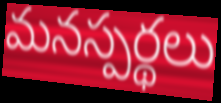
మనస్పర్థలు